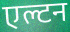
एल्टन